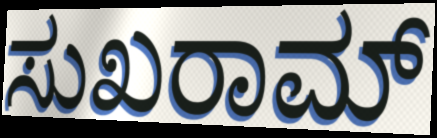
ಸುಖರಾಮ್